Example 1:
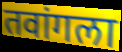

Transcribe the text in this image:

तवांगला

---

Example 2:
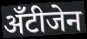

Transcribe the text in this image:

अँटीजेन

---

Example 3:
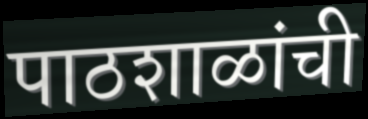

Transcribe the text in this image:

पाठशाळांची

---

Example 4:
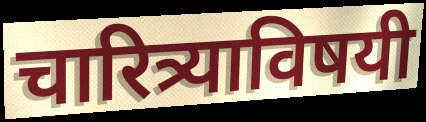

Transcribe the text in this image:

चारित्र्याविषयी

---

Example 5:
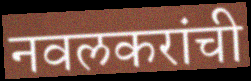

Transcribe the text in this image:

नवलकरांची